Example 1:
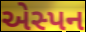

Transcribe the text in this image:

એસ્પન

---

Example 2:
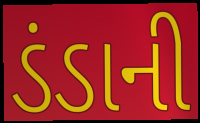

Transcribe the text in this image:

ડંડાની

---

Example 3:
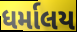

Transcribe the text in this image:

ધર્માલય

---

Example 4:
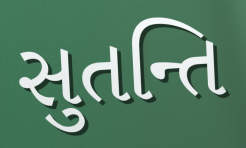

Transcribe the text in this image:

સુતન્તિ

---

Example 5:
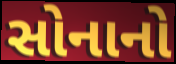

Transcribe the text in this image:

સોનાનો